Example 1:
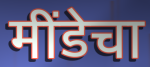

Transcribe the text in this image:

मींडेचा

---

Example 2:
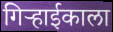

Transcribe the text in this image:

गिर्‍हाईकाला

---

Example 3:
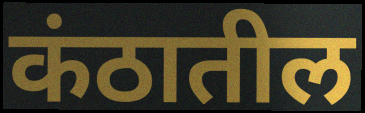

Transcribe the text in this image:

कंठातील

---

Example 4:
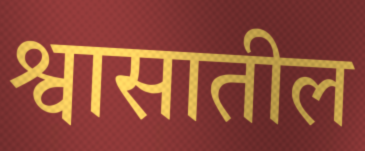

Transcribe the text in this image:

श्वासातील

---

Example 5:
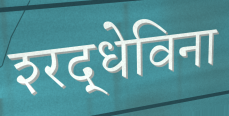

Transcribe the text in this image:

श्रद्धेविना